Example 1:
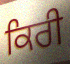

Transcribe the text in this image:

ਕਿਰੀ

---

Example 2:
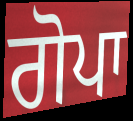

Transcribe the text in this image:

ਗੋਪਾ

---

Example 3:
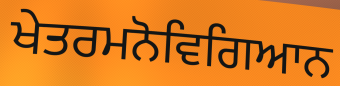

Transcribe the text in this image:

ਖੇਤਰਮਨੋਵਿਗਿਆਨ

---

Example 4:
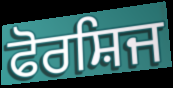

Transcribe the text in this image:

ਫੋਰਸ਼ਿਜ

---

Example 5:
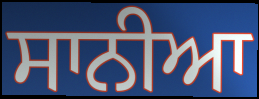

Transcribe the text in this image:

ਸਾਨੀਆ